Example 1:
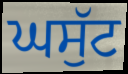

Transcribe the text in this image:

ਘਸੁੱਟ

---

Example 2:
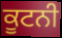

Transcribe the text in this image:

ਕੂਟਨੀ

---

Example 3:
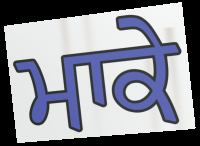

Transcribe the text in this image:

ਮਾਕੇ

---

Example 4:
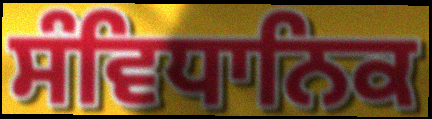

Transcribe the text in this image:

ਸੰਵਿਧਾਨਿਕ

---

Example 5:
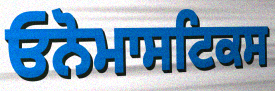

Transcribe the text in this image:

ਓਨੋਮਾਸਟਿਕਸ